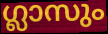
ഗ്ലാസും